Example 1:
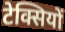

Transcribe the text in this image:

टेक्सियों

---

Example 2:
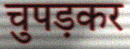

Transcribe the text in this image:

चुपड़कर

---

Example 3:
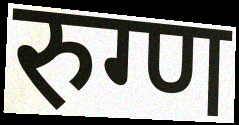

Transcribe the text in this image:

रुग्ण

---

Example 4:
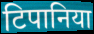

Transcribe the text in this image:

टिपानिया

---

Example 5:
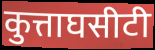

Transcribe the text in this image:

कुत्ताघसीटी